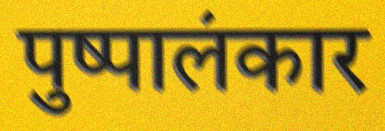
पुष्पालंकार